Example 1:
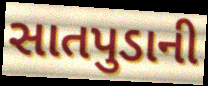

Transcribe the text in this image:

સાતપુડાની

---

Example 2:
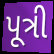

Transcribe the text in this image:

પૂત્રી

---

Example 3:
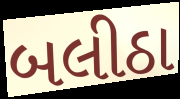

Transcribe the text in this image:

બલીઠા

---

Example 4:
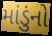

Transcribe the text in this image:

માંડુંનો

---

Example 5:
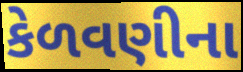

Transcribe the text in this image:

કેળવણીના